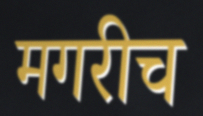
मगरीच